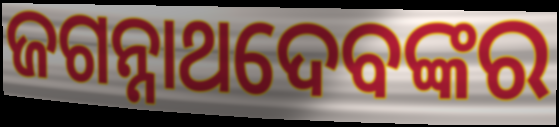
ଜଗନ୍ନାଥଦେବଙ୍କର